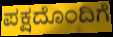
ಪಕ್ಷದೊಂದಿಗೆ